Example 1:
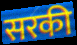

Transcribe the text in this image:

सरकी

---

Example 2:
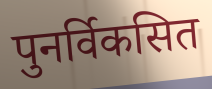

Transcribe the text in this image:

पुनर्विकसित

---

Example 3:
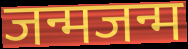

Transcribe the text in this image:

जन्मजन्म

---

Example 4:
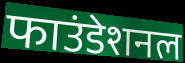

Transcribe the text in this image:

फाउंडेशनल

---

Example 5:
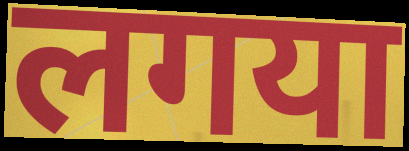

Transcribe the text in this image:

लगया